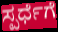
ಸ್ಪರ್ಧೆಗೆ